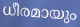
ധീരമായും